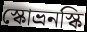
স্কোভ্রনস্কি